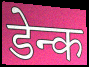
डेन्क